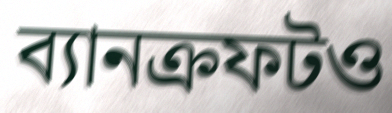
ব্যানক্রফটও